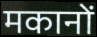
मकानों